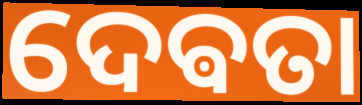
ଦେଵତା